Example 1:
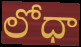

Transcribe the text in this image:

లోధా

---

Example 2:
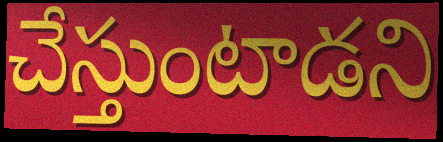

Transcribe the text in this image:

చేస్తుంటాడని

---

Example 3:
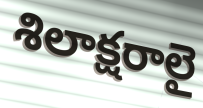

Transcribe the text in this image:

శిలాక్షరాలై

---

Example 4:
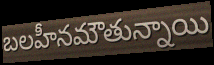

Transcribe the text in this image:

బలహీనమౌతున్నాయి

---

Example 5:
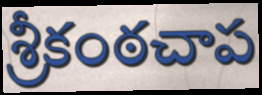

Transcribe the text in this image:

శ్రీకంఠచాప